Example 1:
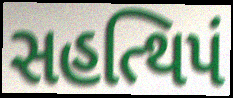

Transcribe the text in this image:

સહત્થિપં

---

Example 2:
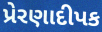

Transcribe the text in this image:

પ્રેરણાદીપક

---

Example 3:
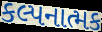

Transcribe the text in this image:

કલ્પનાત્મક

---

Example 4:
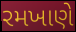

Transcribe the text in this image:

રમખાણે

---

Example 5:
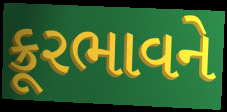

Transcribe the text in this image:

ક્રૂરભાવને